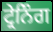
ਟ੍ਰੇਨਿੰਗ